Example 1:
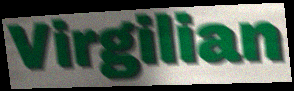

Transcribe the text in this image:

Virgilian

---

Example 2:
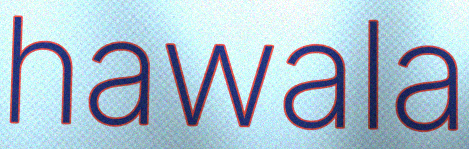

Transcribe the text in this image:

hawala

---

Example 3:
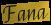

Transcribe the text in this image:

Fana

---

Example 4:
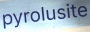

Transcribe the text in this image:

pyrolusite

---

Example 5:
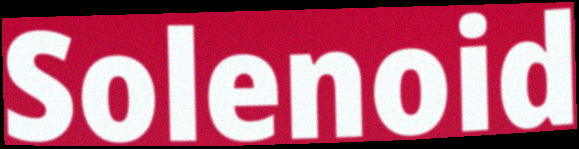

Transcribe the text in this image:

Solenoid